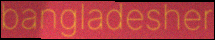
bangladesher